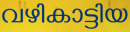
വഴികാട്ടിയ